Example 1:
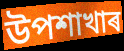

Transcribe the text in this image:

উপশাখাৰ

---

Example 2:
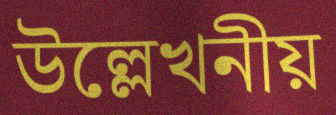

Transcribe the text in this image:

উল্লেখনীয়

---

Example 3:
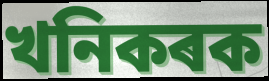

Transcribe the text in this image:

খনিকৰক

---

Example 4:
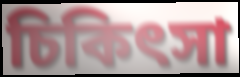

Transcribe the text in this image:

চিকিৎসা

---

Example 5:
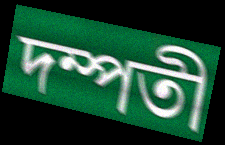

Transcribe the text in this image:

দম্পতী